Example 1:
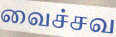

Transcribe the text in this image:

வைச்சவ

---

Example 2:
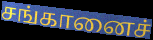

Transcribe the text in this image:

சங்கானைச்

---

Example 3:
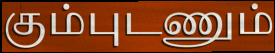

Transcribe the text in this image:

கும்புடணும்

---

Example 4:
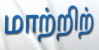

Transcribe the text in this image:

மாற்றிற்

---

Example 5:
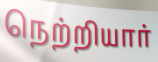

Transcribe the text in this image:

நெற்றியார்